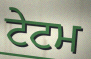
ਟੇਟਮ